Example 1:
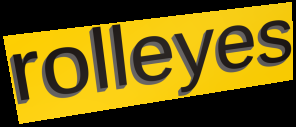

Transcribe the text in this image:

rolleyes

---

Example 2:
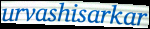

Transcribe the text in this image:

urvashisarkar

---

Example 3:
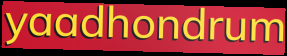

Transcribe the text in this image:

yaadhondrum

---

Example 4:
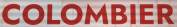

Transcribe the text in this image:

COLOMBIER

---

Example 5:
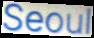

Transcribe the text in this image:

Seoul